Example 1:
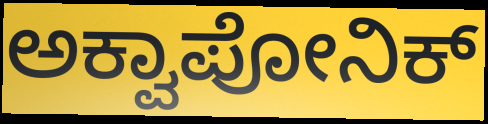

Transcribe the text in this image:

ಅಕ್ವಾಪೋನಿಕ್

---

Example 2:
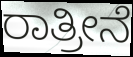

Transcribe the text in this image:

ರಾತ್ರೀನೆ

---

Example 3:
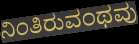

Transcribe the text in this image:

ನಿಂತಿರುವಂಥವು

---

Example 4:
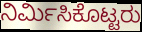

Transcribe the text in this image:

ನಿರ್ಮಿಸಿಕೊಟ್ಟರು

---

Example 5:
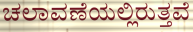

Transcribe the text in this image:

ಚಲಾವಣೆಯಲ್ಲಿರುತ್ತವೆ